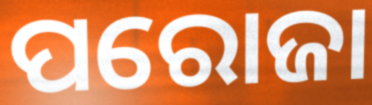
ପରୋଜା